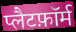
प्लैटफ़ॉर्म